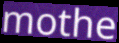
mothe